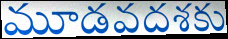
మూడవదశకు